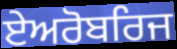
ਏਅਰੋਬਰਿਜ